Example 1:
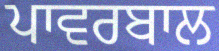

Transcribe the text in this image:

ਪਾਵਰਬਾਲ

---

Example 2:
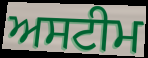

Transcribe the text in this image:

ਅਸਟੀਮ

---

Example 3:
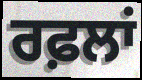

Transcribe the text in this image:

ਰਫ਼ਲਾਂ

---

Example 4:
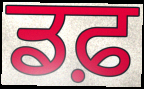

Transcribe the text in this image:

ਡਫ਼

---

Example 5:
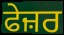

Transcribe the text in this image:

ਫੇਜ਼ਰ